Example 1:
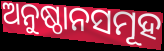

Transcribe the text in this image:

ଅନୁଷ୍ଠାନସମୂହ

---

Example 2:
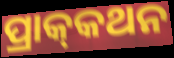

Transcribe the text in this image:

ପ୍ରାକ୍‍କଥନ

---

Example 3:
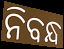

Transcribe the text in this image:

ନିବନ୍ଧ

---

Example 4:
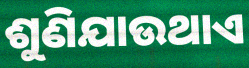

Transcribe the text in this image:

ଶୁଣିଯାଉଥାଏ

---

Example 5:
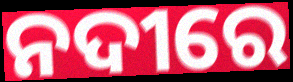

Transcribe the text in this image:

ନଦୀରେ